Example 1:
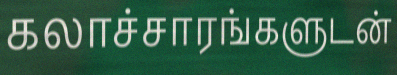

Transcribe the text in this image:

கலாச்சாரங்களுடன்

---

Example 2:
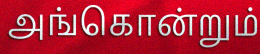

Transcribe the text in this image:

அங்கொன்றும்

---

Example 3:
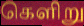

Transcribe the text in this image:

கெளிறு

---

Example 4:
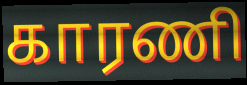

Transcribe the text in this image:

காரணி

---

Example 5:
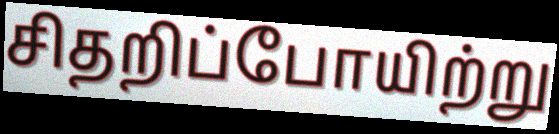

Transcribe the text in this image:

சிதறிப்போயிற்று